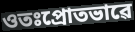
ওতঃপ্ৰোতভাৱে